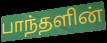
பாந்தளின்